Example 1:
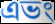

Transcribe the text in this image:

এভং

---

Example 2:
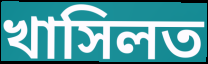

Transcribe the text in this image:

খাসিলত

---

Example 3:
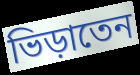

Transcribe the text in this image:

ভিড়াতেন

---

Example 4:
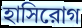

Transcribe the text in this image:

হাসিরোগ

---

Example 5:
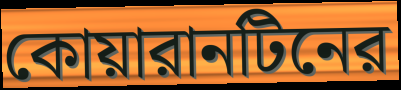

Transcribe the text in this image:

কোয়ারানটিনের